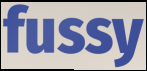
fussy